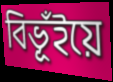
বিভূঁইয়ে